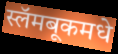
स्लॅमबूकमधे